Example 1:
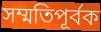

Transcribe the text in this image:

সম্মতিপূর্বক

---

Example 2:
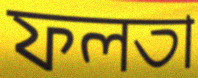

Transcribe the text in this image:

ফলতা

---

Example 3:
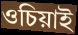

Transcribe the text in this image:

ওচিয়াই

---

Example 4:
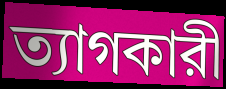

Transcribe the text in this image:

ত্যাগকারী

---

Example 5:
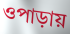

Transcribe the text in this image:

ওপাড়ায়